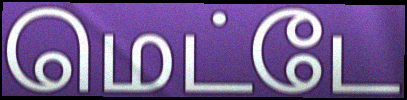
மெட்டே